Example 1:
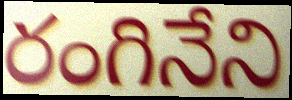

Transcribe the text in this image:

రంగినేని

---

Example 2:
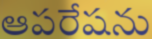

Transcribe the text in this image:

ఆపరేషను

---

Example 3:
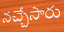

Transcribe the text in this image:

నచ్చేసారు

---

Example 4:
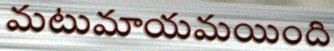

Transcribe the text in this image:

మటుమాయమయింది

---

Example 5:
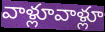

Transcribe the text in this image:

వాళ్లూవాళ్లూ